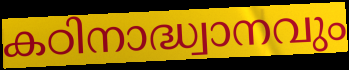
കഠിനാദ്ധ്വാനവും